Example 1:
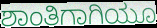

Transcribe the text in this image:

ಶಾಂತಿಗಾಗಿಯೂ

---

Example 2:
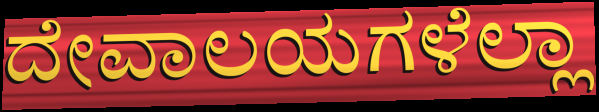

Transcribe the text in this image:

ದೇವಾಲಯಗಳೆಲ್ಲಾ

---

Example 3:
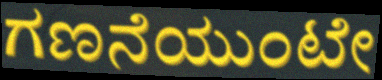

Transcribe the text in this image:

ಗಣನೆಯುಂಟೇ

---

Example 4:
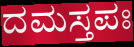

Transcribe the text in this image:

ದಮಸ್ತಪಃ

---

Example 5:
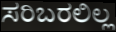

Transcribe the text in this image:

ಸರಿಬರಲಿಲ್ಲ